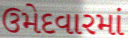
ઉમેદવારમાં